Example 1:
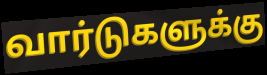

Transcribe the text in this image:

வார்டுகளுக்கு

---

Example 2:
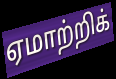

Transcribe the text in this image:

ஏமாற்றிக்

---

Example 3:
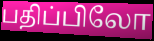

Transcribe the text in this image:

பதிப்பிலோ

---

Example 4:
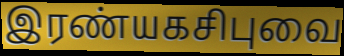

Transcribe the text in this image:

இரண்யகசிபுவை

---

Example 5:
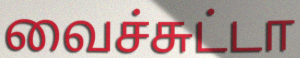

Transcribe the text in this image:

வைச்சுட்டா